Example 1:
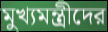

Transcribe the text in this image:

মুখ্যমন্ত্রীদের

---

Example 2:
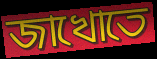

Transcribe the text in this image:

জাখোতে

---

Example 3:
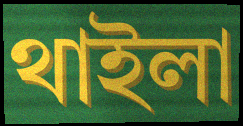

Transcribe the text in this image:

থাইলা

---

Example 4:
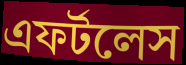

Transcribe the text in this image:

এফর্টলেস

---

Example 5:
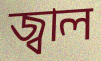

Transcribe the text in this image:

জ্বাল